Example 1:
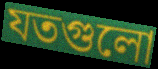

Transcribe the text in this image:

যতগুলো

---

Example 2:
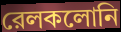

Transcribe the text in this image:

রেলকলোনি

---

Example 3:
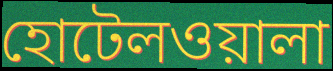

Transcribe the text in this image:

হোটেলওয়ালা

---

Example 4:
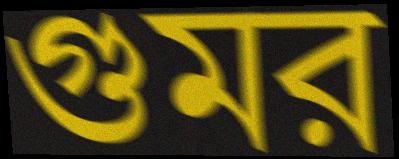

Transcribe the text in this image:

গুমর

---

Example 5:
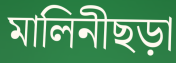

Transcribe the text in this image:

মালিনীছড়া